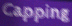
Capping